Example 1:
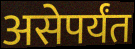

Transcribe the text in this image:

असेपर्यंत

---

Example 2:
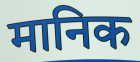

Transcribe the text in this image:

मानिक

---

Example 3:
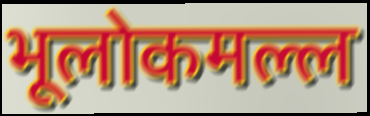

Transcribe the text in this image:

भूलोकमल्ल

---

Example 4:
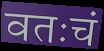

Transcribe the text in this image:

वतःचं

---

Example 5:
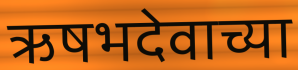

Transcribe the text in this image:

ऋषभदेवाच्या